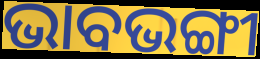
ଭାବଭଙ୍ଗୀ